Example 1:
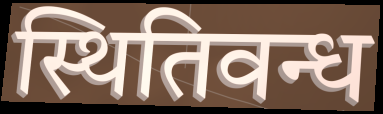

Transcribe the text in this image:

स्थितिवन्ध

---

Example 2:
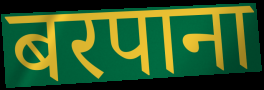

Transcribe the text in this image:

बरपाना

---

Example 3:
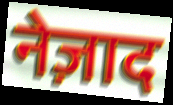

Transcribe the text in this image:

नेज़ाद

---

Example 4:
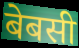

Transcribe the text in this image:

बेबसी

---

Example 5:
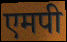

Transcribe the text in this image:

एमपी